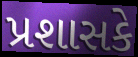
પ્રશાસકે